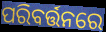
ପରିବର୍ତ୍ତନରେ